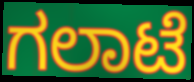
ಗಲಾಟೆ